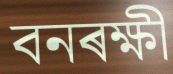
বনৰক্ষী